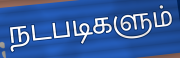
நடபடிகளும்